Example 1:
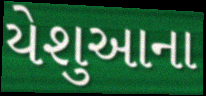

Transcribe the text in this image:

યેશુઆના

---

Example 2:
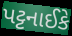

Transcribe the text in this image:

પટ્ટનાઈકે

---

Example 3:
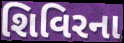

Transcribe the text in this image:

શિવિરના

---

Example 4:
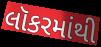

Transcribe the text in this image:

લૉકરમાંથી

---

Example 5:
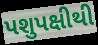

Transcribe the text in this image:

પશુપક્ષીથી